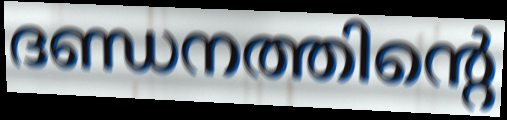
ദണ്ഡനത്തിന്റെ